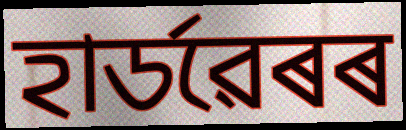
হাৰ্ডৱেৰৰ